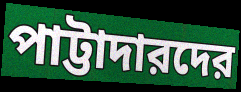
পাট্টাদারদের